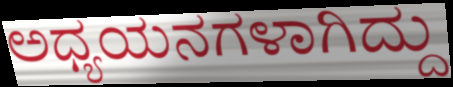
ಅಧ್ಯಯನಗಳಾಗಿದ್ದು